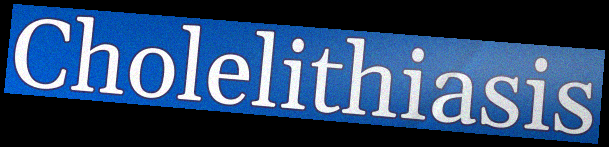
Cholelithiasis